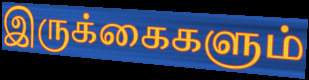
இருக்கைகளும்